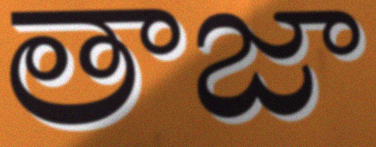
తాజా